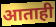
आताही